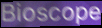
Bioscope